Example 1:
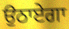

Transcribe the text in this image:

ਉਠਾਏਗਾ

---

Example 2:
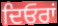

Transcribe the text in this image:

ਦਿਓਰਾਂ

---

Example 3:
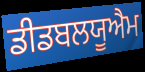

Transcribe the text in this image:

ਡੀਡਬਲਯੂਐਮ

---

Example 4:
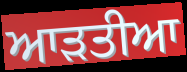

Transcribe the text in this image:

ਆੜਤੀਆ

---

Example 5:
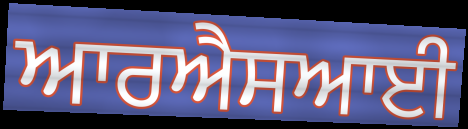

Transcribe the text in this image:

ਆਰਐਸਆਈ